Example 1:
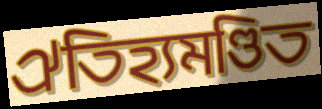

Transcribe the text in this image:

ঐতিহ্যমণ্ডিত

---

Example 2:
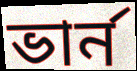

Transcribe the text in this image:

ভার্ন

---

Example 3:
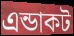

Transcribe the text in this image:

এন্ডাকট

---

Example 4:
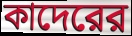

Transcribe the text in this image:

কাদেরের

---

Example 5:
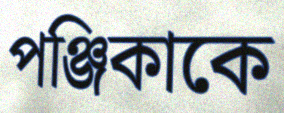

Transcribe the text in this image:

পঞ্জিকাকে